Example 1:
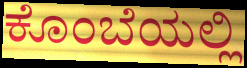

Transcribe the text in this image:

ಕೊಂಬೆಯಲ್ಲಿ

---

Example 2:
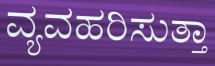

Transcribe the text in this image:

ವ್ಯವಹರಿಸುತ್ತಾ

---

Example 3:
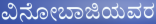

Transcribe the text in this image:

ವಿನೋಬಾಜಿಯವರ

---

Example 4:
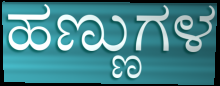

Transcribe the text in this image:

ಹಣ್ಣುಗಳ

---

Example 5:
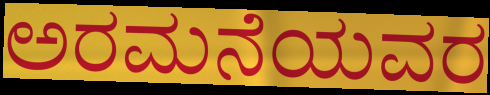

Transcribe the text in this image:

ಅರಮನೆಯವರ